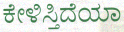
ಕೇಳಿಸ್ತಿದೆಯಾ